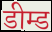
डीम्ड